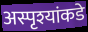
अस्पृश्यांकडे